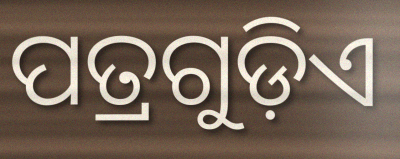
ପତ୍ରଗୁଡ଼ିଏ